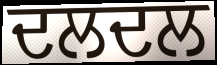
ਦਲਦਲ